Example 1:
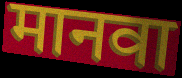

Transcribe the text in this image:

मानवा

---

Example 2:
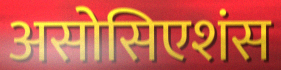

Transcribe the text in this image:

असोसिएशंस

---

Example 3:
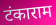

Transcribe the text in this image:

टंकाराम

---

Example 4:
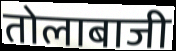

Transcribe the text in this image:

तोलाबाजी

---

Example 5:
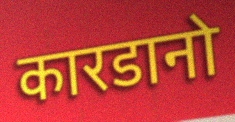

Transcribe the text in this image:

कारडानो